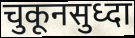
चुकूनसुध्दा